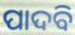
ପାଦବି